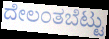
ದೇಲಂತಬೆಟ್ಟು